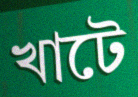
খাটে